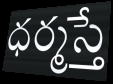
ధర్మస్తే